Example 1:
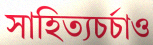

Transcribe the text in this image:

সাহিত্যচর্চাও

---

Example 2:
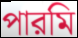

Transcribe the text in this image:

পারমি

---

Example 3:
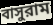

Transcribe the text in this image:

বাসুরাম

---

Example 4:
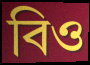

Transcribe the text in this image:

বিও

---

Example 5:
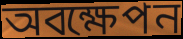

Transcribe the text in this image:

অবক্ষেপন